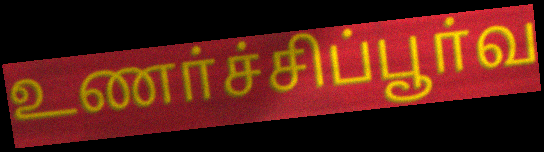
உணர்ச்சிப்பூர்வ